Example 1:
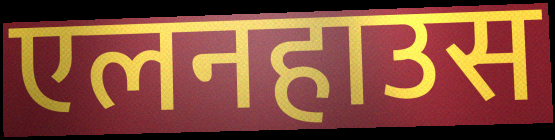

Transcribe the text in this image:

एलनहाउस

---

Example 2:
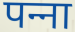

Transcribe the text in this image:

पन्‍ना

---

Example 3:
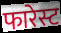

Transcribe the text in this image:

फारेस्‍ट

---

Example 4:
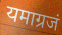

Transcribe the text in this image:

यमाग्रजं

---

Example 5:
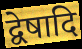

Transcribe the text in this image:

द्वेषादि